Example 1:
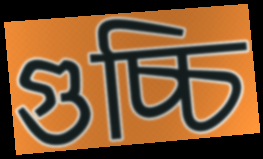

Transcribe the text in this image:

গুচ্চি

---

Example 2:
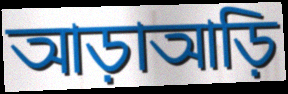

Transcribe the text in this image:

আড়াআড়ি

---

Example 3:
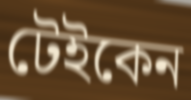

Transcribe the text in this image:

টেইকেন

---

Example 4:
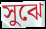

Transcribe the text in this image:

সুঝে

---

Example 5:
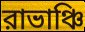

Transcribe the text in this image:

রাভাঞ্চি